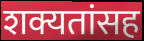
शक्यतांसह